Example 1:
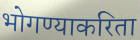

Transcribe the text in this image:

भोगण्याकरिता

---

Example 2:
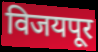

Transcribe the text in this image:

विजयपूर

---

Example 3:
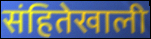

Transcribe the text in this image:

संहितेखाली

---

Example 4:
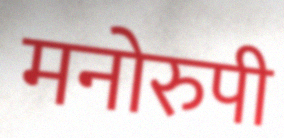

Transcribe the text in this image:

मनोरुपी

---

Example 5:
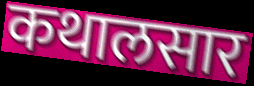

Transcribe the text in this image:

कथालसार